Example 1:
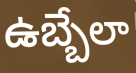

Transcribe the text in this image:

ఉబ్బేలా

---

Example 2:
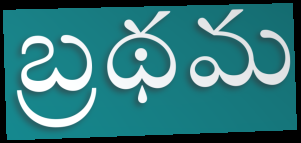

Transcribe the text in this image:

బ్రథమ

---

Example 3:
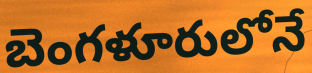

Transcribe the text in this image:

బెంగళూరులోనే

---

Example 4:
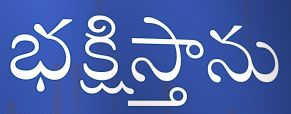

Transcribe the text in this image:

భక్షిస్తాను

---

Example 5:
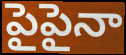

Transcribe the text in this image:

పైపైనా